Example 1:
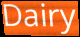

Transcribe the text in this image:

Dairy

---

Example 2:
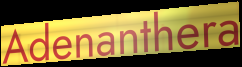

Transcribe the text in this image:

Adenanthera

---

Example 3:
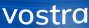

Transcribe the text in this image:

vostra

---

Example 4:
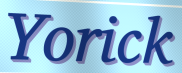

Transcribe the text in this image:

Yorick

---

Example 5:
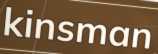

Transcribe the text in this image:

kinsman